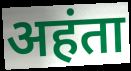
अहंता